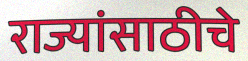
राज्यांसाठीचे